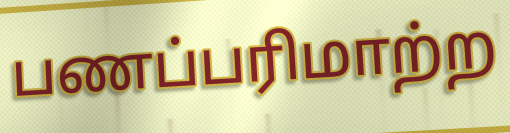
பணப்பரிமாற்ற